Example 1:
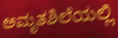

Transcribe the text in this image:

ಅಮೃತಶಿಲೆಯಲ್ಲಿ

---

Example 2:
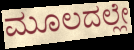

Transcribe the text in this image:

ಮೂಲದಲ್ಲೇ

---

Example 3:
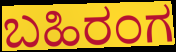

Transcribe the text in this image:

ಬಹಿರಂಗ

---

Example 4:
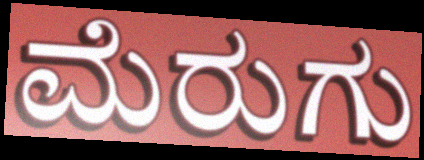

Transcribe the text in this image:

ಮೆರುಗು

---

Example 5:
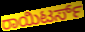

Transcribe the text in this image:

ರಾಯಿಟರ್ಸ್